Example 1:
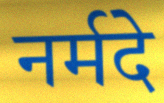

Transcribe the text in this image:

नर्मदे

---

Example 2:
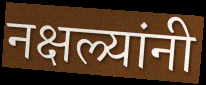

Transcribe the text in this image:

नक्षल्यांनी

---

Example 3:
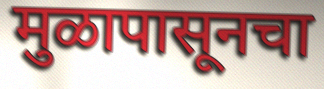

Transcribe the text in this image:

मुळापासूनचा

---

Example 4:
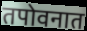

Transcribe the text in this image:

तपोवनात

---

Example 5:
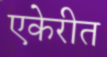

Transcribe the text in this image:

एकेरीत